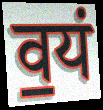
व॒यं